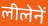
लीलेनें